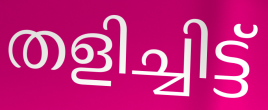
തളിച്ചിട്ട്